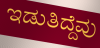
ಇಡುತಿದ್ದೆವು